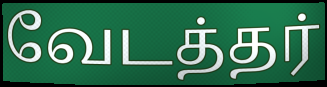
வேடத்தர்